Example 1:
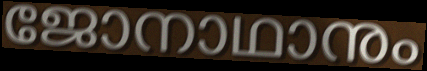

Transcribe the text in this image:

ജോനാഥാനും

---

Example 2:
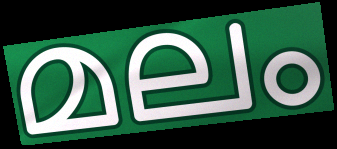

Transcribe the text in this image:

മലം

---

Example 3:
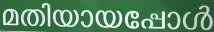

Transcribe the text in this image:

മതിയായപ്പോൾ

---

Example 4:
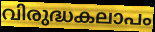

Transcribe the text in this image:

വിരുദ്ധകലാപം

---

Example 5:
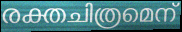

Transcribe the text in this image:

രക്തചിത്രമെന്